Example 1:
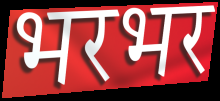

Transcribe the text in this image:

भरभर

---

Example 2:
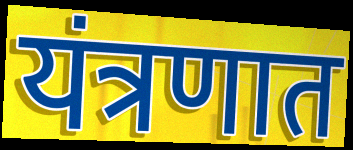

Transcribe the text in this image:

यंत्रणात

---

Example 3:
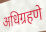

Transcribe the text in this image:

अधिग्रहणे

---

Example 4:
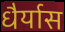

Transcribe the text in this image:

धैर्यास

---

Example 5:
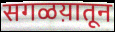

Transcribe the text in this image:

सगळय़ातून